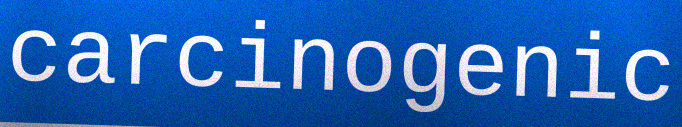
carcinogenic